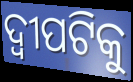
ଦ୍ୱୀପଟିକୁ